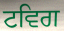
ਟਵਿਗ